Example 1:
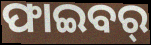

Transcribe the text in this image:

ଫାଇବର୍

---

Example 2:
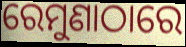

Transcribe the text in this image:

ରେମୁଣାଠାରେ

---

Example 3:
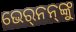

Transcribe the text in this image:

ଭେର୍‍ନନ୍‌ଙ୍କୁ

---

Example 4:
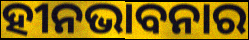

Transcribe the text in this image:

ହୀନଭାବନାର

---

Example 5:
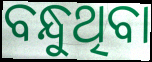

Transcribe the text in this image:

ବନ୍ଧୁଥିବା